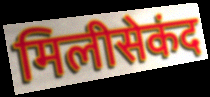
मिलीसेकंद